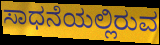
ಸಾಧನೆಯಲ್ಲಿರುವ